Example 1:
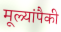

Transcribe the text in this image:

मूल्यांपैकी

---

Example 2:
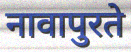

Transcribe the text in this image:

नावापुरते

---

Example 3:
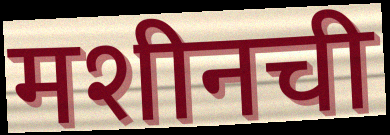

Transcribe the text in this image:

मशीनची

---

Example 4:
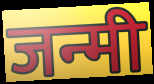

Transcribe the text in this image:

जन्मी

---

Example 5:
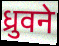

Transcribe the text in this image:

ध्रुवने